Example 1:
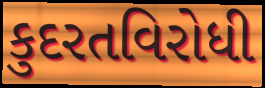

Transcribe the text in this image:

કુદરતવિરોધી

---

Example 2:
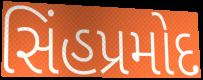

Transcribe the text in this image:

સિંહપ્રમોદ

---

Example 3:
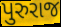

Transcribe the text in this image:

પુરુરાજ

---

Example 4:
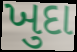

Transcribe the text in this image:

ખુદા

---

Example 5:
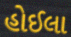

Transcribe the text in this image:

હોઈલા